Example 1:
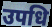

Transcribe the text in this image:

उपधि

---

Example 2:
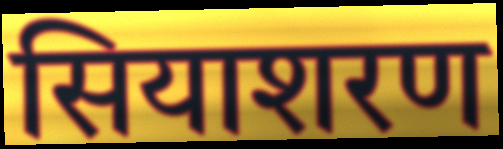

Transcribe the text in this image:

सियाशरण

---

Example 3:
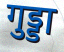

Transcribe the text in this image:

गुड्डा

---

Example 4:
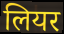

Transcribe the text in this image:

लियर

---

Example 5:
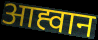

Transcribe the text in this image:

आह्वान